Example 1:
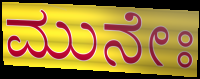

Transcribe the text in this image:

ಮುನೇಃ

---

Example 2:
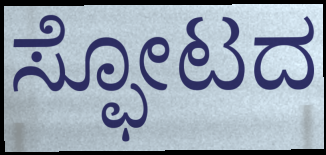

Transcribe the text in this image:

ಸ್ಫೋಟದ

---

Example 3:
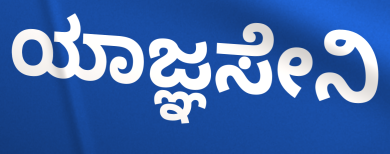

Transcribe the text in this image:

ಯಾಜ್ಞಸೇನಿ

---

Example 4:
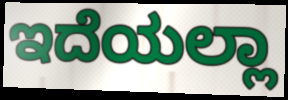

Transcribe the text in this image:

ಇದೆಯಲ್ಲಾ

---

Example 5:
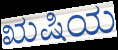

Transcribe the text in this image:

ಋಷಿಯ